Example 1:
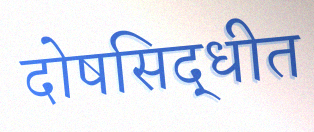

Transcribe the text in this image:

दोषसिद्धीत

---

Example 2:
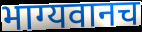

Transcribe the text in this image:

भाग्यवानच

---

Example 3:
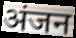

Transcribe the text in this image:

अंजन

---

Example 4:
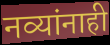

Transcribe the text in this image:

नव्यांनाही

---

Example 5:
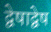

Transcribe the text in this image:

द्वेषाद्वेष